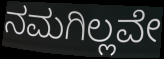
ನಮಗಿಲ್ಲವೇ